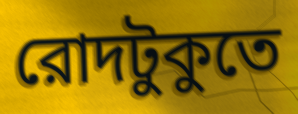
রোদটুকুতে